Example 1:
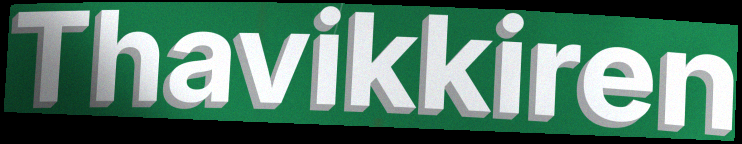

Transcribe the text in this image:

Thavikkiren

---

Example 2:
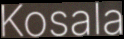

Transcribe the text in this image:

Kosala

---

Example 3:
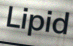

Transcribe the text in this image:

Lipid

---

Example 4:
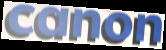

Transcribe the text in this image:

canon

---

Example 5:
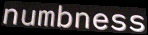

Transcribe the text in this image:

numbness